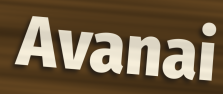
Avanai